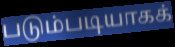
படும்படியாகக்